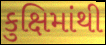
કુક્ષિમાંથી